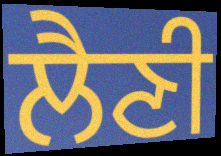
ਲੈਣੀ